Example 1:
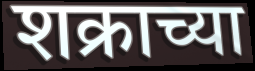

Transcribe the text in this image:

शक्राच्या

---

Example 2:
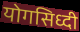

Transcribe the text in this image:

योगसिध्दी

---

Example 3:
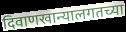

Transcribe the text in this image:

दिवाणखान्यालगतच्या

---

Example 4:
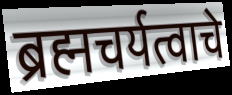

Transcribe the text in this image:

ब्रह्मचर्यत्वाचे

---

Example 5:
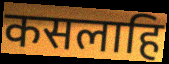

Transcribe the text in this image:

कसलाहि